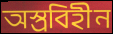
অস্ত্রবিহীন